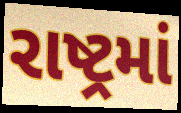
રાષ્ટ્રમાં